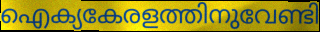
ഐക്യകേരളത്തിനുവേണ്ടി